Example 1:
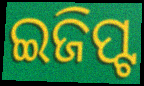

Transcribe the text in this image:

ଇଜିପ୍ଟ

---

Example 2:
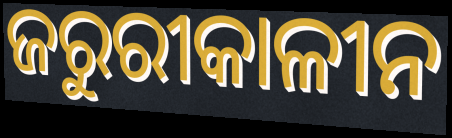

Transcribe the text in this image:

ଜରୁରୀକାଳୀନ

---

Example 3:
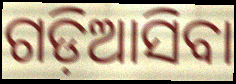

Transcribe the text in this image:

ଗଡ଼ିଆସିବା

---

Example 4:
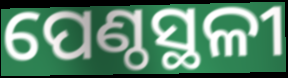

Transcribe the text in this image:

ପେଣ୍ଠସ୍ଥଳୀ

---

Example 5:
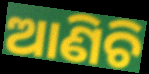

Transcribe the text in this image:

ଆଣିଚି